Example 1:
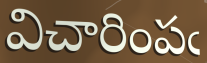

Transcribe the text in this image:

విచారింపఁ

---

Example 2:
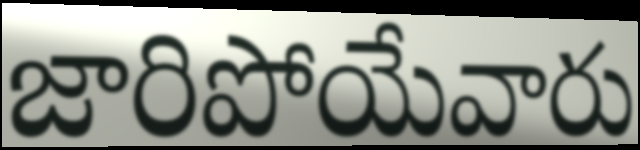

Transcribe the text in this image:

జారిపోయేవారు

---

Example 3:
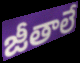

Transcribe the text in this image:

జీతాలే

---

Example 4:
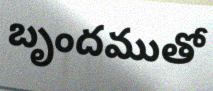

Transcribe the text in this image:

బృందముతో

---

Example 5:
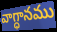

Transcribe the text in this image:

వాగ్ధానము